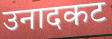
उनादकट